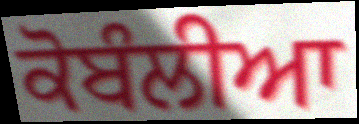
ਕੋਬੰਲੀਆ